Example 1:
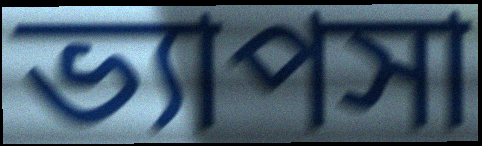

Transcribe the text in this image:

ভ্যাপসা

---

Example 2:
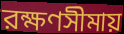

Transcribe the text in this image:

রক্ষণসীমায়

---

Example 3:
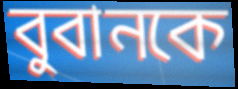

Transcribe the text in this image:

বুবানকে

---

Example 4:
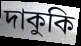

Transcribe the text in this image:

দাকুকি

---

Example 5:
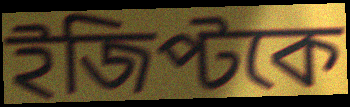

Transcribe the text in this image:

ইজিপ্টকে